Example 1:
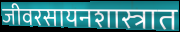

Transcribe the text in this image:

जीवरसायनशास्त्रात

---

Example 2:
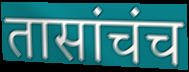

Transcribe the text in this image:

तासांचंच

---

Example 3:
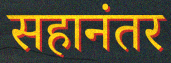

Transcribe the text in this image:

सहानंतर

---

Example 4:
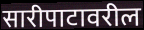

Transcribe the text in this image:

सारीपाटावरील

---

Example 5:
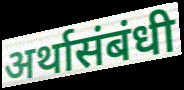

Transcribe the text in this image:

अर्थासंबंधी